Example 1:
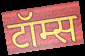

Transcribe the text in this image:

टॉम्स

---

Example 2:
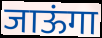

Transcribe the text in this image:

जाऊंगा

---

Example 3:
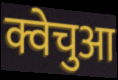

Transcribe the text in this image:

क्वेचुआ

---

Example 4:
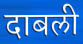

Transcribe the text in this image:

दाबली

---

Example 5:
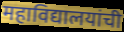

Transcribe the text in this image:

महाविद्यालयांची